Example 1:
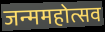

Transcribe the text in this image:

जन्ममहोत्सव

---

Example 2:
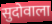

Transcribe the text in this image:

सुदोवाला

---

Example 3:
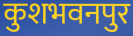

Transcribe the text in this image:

कुशभवनपुर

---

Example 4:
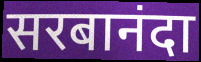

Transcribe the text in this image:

सरबानंदा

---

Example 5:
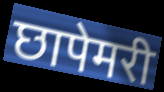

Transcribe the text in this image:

छापेमरी